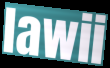
lawii